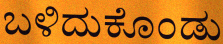
ಬಳಿದುಕೊಂಡು